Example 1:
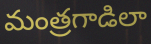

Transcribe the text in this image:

మంత్రగాడిలా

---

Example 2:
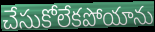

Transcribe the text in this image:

చేసుకోలేకపోయాను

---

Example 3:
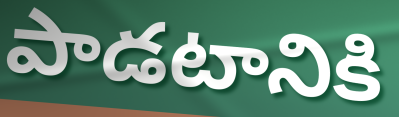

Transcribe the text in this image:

పాడటానికి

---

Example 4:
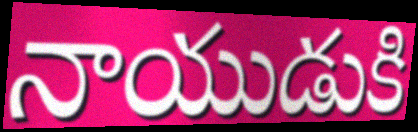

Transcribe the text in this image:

నాయుడుకి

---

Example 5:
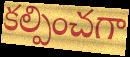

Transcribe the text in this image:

కల్పించగా